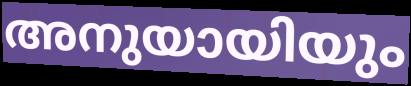
അനുയായിയും